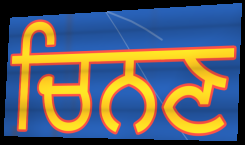
ਚਿਨਣ